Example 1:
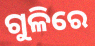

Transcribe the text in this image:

ଗୁଳିରେ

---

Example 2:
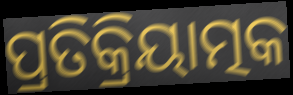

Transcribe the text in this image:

ପ୍ରତିକ୍ରିୟାତ୍ମକ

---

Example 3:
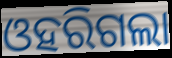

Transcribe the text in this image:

ଓହରିଗଲା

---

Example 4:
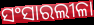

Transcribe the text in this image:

ସଂସାରଲୀଳା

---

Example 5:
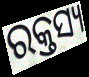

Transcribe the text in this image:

ରକ୍ତସ୍ୟ